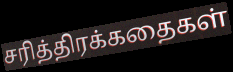
சரித்திரக்கதைகள்